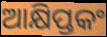
ଆକ୍ଷିପ୍ତକଂ